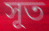
সূত